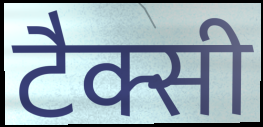
टैक्सी